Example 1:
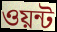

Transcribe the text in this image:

ওয়ন্ট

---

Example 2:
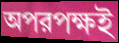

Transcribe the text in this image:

অপরপক্ষই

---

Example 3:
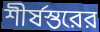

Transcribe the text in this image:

শীর্ষস্তরের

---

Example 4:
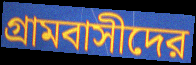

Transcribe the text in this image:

গ্রামবাসীদের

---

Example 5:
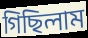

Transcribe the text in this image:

গিছিলাম